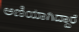
ಅಣಿಯಾಗಿದ್ದಾರೆ